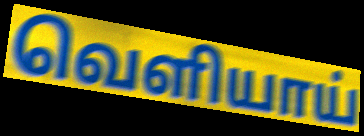
வெளியாய்